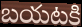
బయటకి